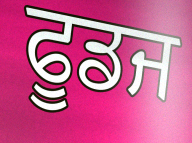
ਫੂਡਜ